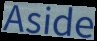
Aside